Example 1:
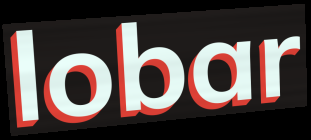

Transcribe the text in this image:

lobar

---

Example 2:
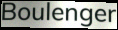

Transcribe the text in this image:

Boulenger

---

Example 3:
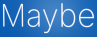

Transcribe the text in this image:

Maybe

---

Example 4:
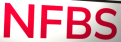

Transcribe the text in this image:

NFBS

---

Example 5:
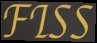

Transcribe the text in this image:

FISS